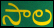
సాల